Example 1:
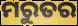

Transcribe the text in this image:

ମରୁତର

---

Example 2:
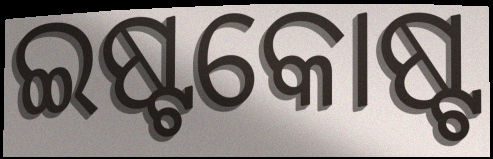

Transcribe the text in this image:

ଇଷ୍ଟକୋଷ୍ଟ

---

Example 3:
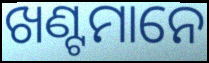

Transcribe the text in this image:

ଖଣ୍ଟମାନେ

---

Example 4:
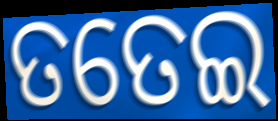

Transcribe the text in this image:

ତତେଇ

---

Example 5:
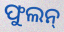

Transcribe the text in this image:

ଫୁଲନ୍